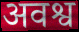
अवश्व